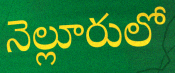
నెల్లూరులో